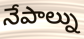
నేపాల్ను